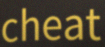
cheat